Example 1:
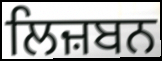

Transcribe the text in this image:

ਲਿਜ਼ਬਨ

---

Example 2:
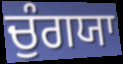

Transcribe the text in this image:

ਚੁੰਗਯਾ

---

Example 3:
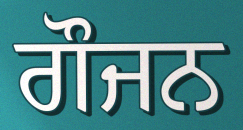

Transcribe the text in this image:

ਗੌਜਨ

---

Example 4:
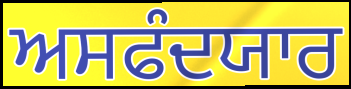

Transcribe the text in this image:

ਅਸਫੰਦਯਾਰ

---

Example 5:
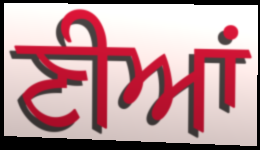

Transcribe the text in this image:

ਣੀਆਂ